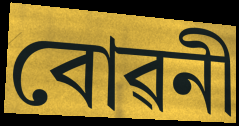
বোৱনী